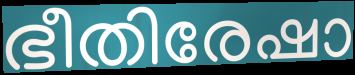
ഭീതിരേഷാ